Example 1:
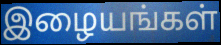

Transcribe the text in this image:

இழையங்கள்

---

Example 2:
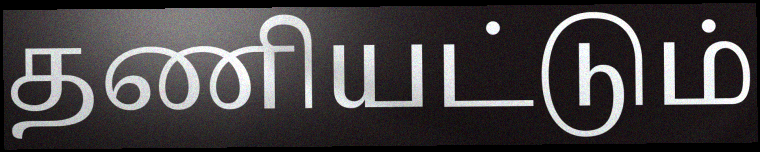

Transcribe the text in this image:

தணியட்டும்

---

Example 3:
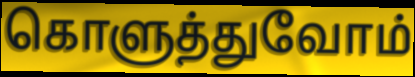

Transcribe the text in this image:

கொளுத்துவோம்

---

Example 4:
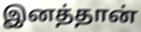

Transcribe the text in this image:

இனத்தான்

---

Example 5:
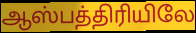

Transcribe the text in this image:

ஆஸ்பத்திரியிலே